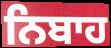
ਨਿਬਾਹ